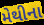
મેથીના